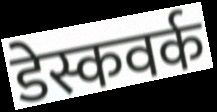
डेस्कवर्क